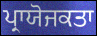
ਪ੍ਰਾਯੋਜਕਤਾ